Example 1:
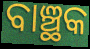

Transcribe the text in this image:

ବାଞ୍ଛକ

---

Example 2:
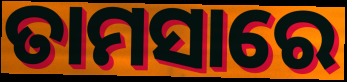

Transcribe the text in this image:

ତାମସାରେ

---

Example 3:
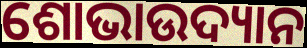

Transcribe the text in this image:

ଶୋଭାଉଦ୍ୟାନ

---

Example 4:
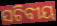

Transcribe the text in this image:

ସଚିବୀୟ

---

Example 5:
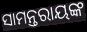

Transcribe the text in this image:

ସାମନ୍ତରାୟଙ୍କ